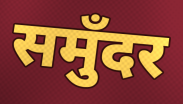
समुँदर